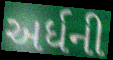
અર્ધની